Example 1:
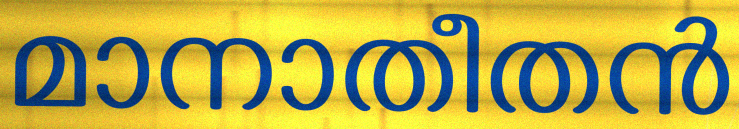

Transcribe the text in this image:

മാനാതീതൻ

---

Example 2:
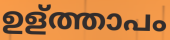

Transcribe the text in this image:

ഉള്ത്താപം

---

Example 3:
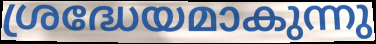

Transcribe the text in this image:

ശ്രദ്ധേയമാകുന്നു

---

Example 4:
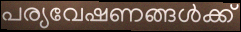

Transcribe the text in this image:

പര്യവേഷണങ്ങൾക്ക്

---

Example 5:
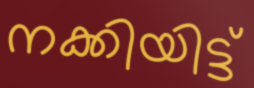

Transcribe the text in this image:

നക്കിയിട്ട്